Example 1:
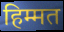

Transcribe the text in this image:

हिम्मत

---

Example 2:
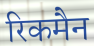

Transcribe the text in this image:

रिकमैन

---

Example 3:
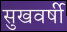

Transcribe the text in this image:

सुखवर्षी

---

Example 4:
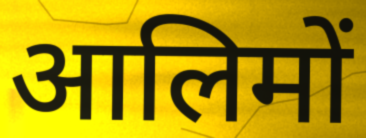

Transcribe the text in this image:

आलिमों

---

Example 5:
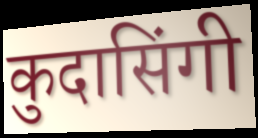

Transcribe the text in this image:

कुदासिंगी